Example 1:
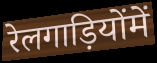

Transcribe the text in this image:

रेलगाड़ियोंमें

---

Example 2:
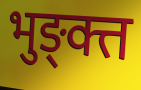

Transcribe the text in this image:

भुङ्क्त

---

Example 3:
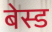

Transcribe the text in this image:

बेस्ड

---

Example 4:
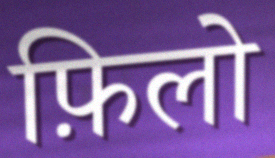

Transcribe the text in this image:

फ़िलो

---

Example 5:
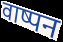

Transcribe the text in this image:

वाष्पन